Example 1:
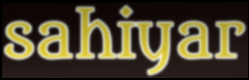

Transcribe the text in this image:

sahiyar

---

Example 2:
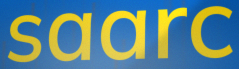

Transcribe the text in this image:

saarc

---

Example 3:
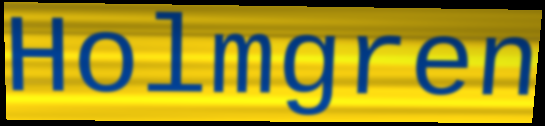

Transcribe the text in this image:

Holmgren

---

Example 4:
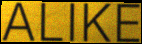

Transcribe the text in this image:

ALIKE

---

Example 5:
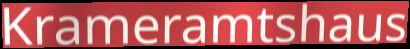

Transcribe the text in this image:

Krameramtshaus